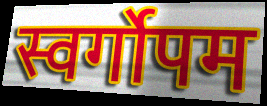
स्वर्गोपम